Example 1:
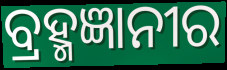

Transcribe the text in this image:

ବ୍ରହ୍ମଜ୍ଞାନୀର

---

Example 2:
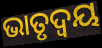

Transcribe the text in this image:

ଭାତୃଦ୍ବୟ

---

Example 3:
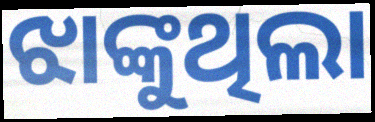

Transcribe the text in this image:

ଝାଙ୍କୁଥିଲା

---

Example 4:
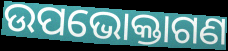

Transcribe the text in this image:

ଉପଭୋକ୍ତାଗଣ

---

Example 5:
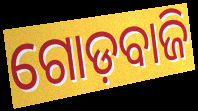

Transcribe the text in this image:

ଗୋଡ଼ବାଜି